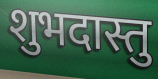
शुभदास्तु